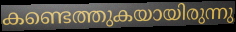
കണ്ടെത്തുകയായിരുന്നു